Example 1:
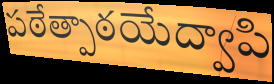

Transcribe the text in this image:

పఠేత్పాఠయేద్వాపి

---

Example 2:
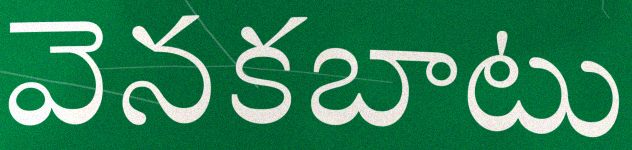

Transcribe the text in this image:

వెనకబాటు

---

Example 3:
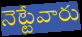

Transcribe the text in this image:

నెట్టేవారు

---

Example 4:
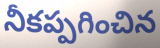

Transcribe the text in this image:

నీకప్పగించిన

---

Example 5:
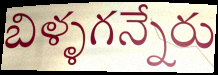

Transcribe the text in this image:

బిళ్ళగన్నేరు